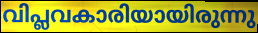
വിപ്ലവകാരിയായിരുന്നു